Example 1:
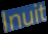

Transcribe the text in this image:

Inuit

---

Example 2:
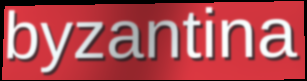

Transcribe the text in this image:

byzantina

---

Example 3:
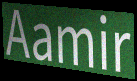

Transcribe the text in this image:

Aamir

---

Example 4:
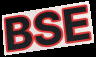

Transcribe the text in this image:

BSE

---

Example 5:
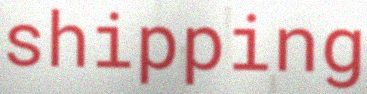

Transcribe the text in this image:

shipping